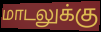
மாடலுக்கு